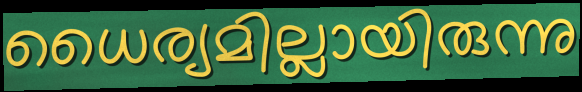
ധൈര്യമില്ലായിരുന്നു